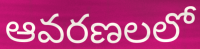
ఆవరణలలో